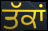
ਤੱਕਾਂ